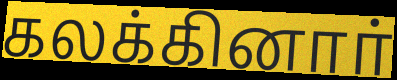
கலக்கினார்